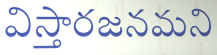
విస్తారజనమని